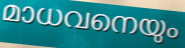
മാധവനെയും